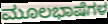
ಮೂಲಭಾಷೆಗಳ